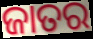
ଜାତର